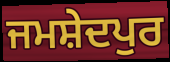
ਜਮਸ਼ੇਦਪੁਰ